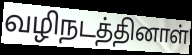
வழிநடத்தினாள்